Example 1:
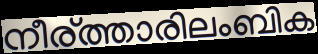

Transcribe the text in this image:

നീര്ത്താരിലംബിക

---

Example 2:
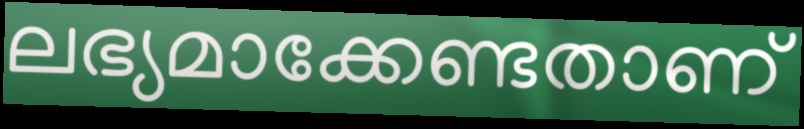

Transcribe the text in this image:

ലഭ്യമാക്കേണ്ടതാണ്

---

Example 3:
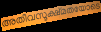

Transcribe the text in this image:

അതീവസൂക്ഷ്മതയോടെ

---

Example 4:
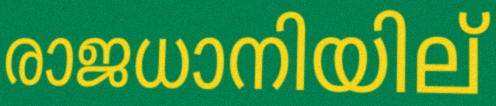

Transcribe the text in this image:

രാജധാനിയില്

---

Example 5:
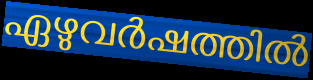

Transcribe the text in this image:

ഏഴുവർഷത്തിൽ